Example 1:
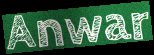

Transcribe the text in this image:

Anwar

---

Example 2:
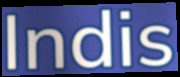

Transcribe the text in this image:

Indis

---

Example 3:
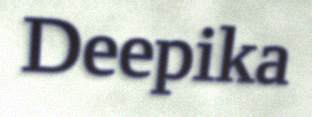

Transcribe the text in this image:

Deepika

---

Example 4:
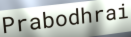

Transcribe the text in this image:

Prabodhrai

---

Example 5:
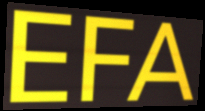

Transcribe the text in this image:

EFA